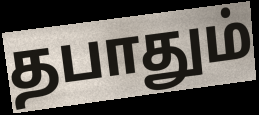
தபாதும்